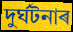
দুৰ্ঘটনাৰ